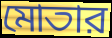
মোতার